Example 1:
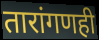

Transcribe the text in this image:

तारांगणही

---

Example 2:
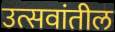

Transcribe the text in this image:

उत्सवांतील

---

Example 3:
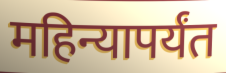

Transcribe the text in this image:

महिन्यापर्यंत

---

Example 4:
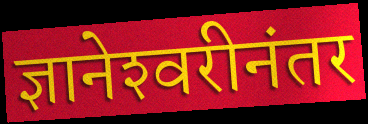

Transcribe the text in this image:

ज्ञानेश्वरीनंतर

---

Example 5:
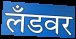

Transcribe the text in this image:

लँडवर